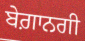
ਬੇਗ਼ਾਨਗੀ